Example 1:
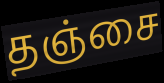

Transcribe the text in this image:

தஞ்சை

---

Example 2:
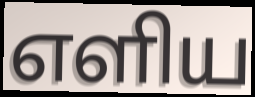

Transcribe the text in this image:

எளிய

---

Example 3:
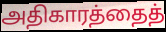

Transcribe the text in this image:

அதிகாரத்தைத்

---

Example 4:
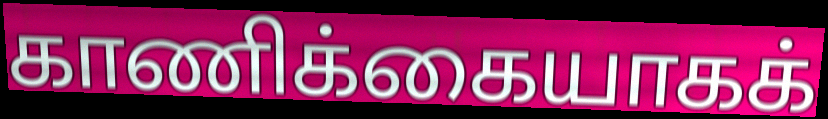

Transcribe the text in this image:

காணிக்கையாகக்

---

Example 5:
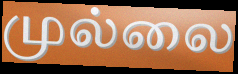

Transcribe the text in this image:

முல்லை